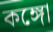
কঙ্গো